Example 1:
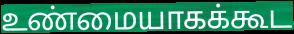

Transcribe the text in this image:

உண்மையாகக்கூட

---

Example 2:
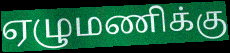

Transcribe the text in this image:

ஏழுமணிக்கு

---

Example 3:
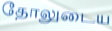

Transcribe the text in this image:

தோலுடைய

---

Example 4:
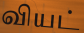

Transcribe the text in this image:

வியட்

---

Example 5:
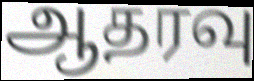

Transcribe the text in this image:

ஆதரவு